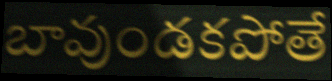
బావుండకపోతే